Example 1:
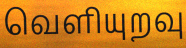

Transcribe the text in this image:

வெளியுறவு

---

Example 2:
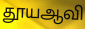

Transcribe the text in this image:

தூயஆவி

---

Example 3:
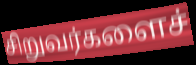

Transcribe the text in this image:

சிறுவர்களைச்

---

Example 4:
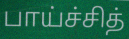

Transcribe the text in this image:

பாய்ச்சித்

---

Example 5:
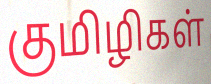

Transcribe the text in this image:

குமிழிகள்